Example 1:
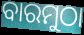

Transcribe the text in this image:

ବାରମୁଠା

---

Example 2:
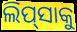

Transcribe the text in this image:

ଲିପ୍‍ସାକୁ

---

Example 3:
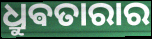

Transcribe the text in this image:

ଧ୍ରୁଵତାରାର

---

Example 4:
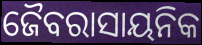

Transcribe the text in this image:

ଜୈବରାସାୟନିକ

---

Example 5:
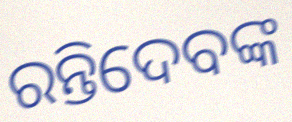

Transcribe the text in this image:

ରନ୍ତିଦେବଙ୍କ